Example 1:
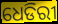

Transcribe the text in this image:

ଧେଡିରୀ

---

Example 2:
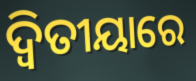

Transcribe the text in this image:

ଦ୍ଵିତୀୟାରେ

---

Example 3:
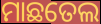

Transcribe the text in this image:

ମାଛତେଲ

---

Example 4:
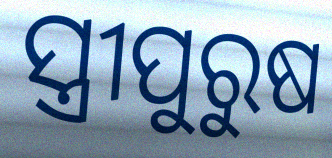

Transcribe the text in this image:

ସ୍ତ୍ରୀପୁରୁଷ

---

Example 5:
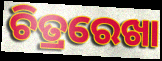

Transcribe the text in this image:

ଚିତ୍ରରେଖା